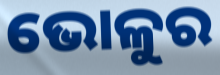
ଭୋଳୁର